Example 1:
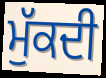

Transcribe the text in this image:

ਮੁੱਕਦੀ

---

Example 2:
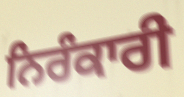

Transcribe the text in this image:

ਨਿਰੰਕਾਰੀ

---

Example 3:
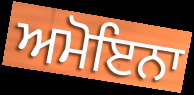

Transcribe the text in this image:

ਅਮੋਇਨਾ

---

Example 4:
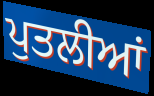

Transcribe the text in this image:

ਪੁਤਲੀਆਂ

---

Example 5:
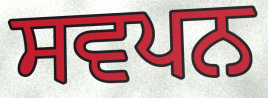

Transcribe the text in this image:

ਸਵਪਨ